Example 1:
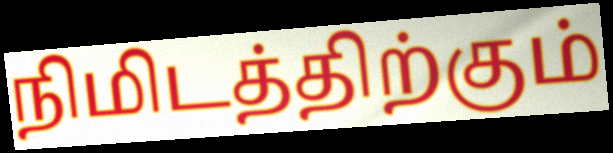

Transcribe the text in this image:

நிமிடத்திற்கும்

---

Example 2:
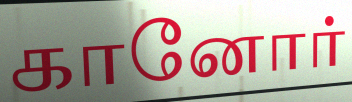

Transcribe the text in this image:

கானோர்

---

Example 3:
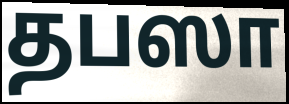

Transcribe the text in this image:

தபஸா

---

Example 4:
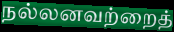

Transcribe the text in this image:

நல்லனவற்றைத்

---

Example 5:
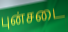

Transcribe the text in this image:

புன்சடை